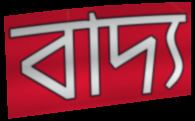
বাদ্য